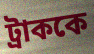
ট্রাককে